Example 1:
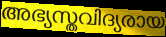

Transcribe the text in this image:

അഭ്യസ്തവിദ്യരായ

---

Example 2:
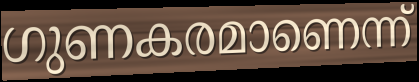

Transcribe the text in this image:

ഗുണകരമാണെന്ന്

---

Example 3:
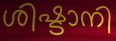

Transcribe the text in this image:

ശിഷ്ടാനി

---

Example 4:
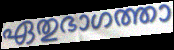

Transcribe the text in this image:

ഏതുഭാഗത്താ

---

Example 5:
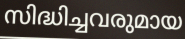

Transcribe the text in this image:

സിദ്ധിച്ചവരുമായ